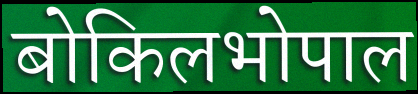
बोकिलभोपाल